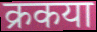
क्रकया